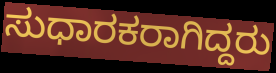
ಸುಧಾರಕರಾಗಿದ್ದರು